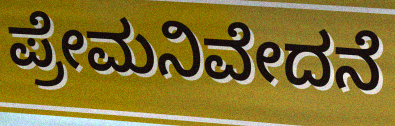
ಪ್ರೇಮನಿವೇದನೆ